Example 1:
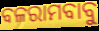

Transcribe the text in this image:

ବଳରାମବାବୁ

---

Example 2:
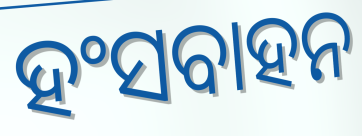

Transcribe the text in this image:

ହଂସବାହନ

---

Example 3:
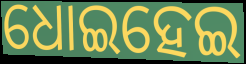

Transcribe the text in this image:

ଧୋଇହେଇ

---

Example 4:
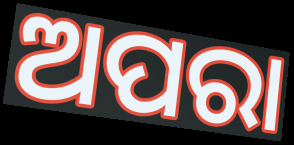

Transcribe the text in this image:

ଅପରା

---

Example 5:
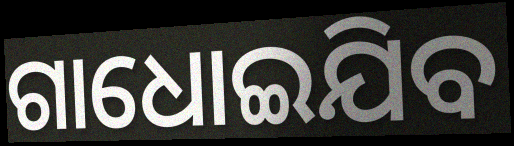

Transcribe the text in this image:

ଗାଧୋଇଯିବ